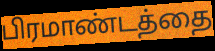
பிரமாண்டத்தை